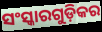
ସଂସ୍କାରଗୁଡ଼ିକର